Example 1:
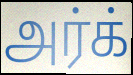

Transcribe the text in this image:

அர்க்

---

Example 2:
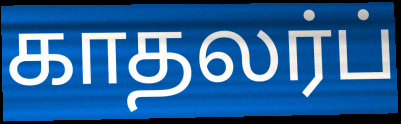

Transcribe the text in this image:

காதலர்ப்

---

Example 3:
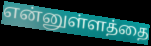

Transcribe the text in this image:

என்னுள்ளத்தை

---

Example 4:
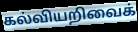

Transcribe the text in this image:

கல்வியறிவைக்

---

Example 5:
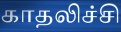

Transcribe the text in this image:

காதலிச்சி